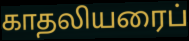
காதலியரைப்